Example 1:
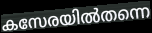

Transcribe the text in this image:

കസേരയിൽതന്നെ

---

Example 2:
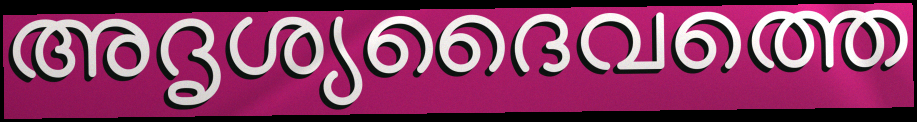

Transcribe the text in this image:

അദൃശ്യദൈവത്തെ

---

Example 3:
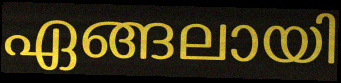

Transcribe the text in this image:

ഏങ്ങലായി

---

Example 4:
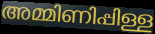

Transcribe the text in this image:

അമ്മിണിപ്പിള്ള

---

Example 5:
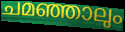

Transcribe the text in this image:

ചമഞ്ഞാലും